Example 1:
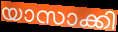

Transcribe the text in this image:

യാസാക്കി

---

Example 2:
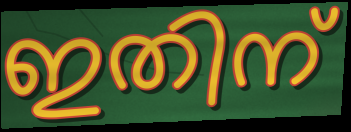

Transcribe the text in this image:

ഇതിന്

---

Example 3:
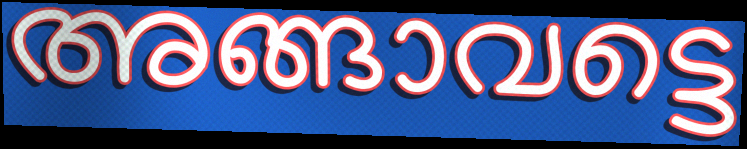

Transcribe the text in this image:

അങ്ങാവട്ടെ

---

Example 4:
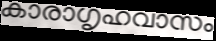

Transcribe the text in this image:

കാരാഗൃഹവാസം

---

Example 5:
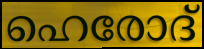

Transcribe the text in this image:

ഹെരോദ്